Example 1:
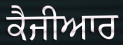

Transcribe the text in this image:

ਕੈਜੀਆਰ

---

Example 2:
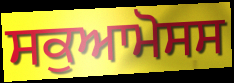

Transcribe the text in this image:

ਸਕੁਆਮੋਸਸ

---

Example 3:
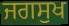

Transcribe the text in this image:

ਜਗਸੁਖ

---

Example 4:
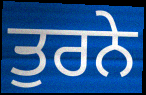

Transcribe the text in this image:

ਤੁਰਨੇ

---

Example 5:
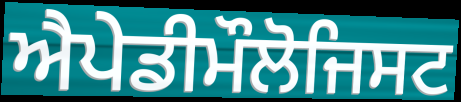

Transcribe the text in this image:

ਐਪੇਡੀਮੌਲੋਜਿਸਟ